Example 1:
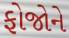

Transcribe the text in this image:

ફોજોને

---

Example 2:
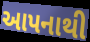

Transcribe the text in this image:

આપનાથી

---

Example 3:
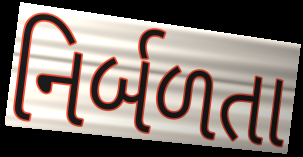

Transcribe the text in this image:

નિર્બળતા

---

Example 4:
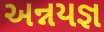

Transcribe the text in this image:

અન્નયજ્ઞ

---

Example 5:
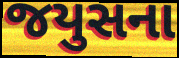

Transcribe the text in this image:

જયુસના